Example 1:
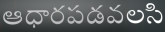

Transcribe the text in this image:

ఆధారపడవలసి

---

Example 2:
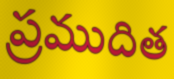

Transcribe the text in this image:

ప్రముదిత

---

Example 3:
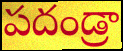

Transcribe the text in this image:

పదండ్రా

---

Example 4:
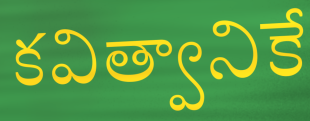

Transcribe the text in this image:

కవిత్వానికే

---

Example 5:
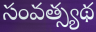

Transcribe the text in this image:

సంవత్స్యథ